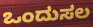
ಒಂದುಸಲ